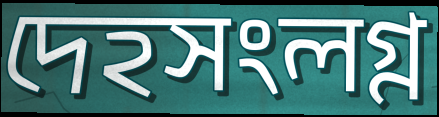
দেহসংলগ্ন